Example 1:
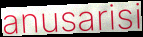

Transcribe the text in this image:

anusarisi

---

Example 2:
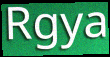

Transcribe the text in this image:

Rgya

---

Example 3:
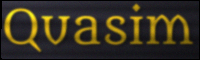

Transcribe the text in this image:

Quasim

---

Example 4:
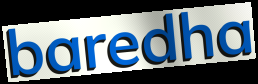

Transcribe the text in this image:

baredha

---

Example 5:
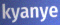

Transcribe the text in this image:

kyanye